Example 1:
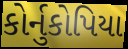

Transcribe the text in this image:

કોર્નુકોપિયા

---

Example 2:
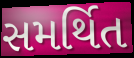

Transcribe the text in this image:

સમર્થિત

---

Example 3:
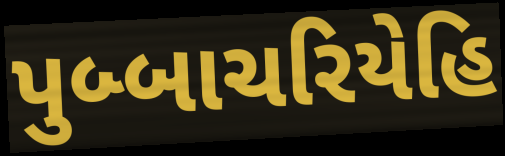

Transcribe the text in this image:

પુબ્બાચરિયેહિ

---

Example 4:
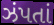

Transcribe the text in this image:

ઝંપતાં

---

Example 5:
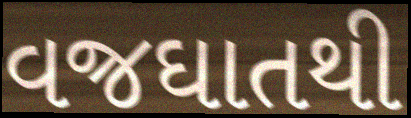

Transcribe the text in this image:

વજ્રઘાતથી